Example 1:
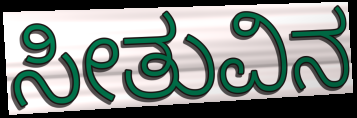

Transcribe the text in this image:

ಸೀತುವಿನ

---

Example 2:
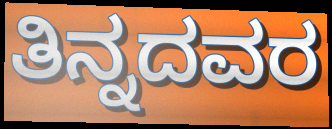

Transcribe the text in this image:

ತಿನ್ನದವರ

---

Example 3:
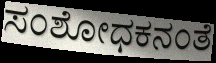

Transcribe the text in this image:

ಸಂಶೋಧಕನಂತೆ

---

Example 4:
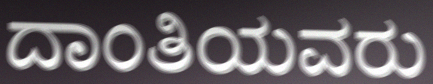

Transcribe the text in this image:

ದಾಂತಿಯವರು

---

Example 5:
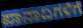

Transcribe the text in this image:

ಪಾನಾದಿಗಳಿಗೆ